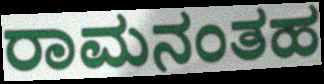
ರಾಮನಂತಹ